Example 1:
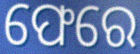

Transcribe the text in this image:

ଫେରେ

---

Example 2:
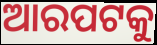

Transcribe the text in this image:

ଆରପଟକୁ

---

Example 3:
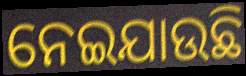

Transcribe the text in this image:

ନେଇଯାଉଛି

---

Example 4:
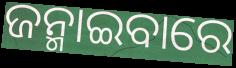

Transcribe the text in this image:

ଜନ୍ମାଇବାରେ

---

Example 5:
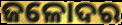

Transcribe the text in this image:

ଜଳୋଦର